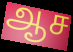
ஆச